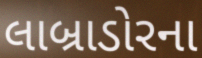
લાબ્રાડોરના